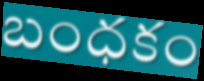
బంధకం